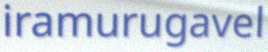
iramurugavel